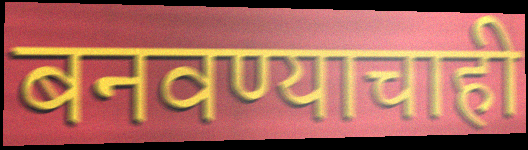
बनवण्याचाही